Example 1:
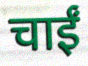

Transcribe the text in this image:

चाईं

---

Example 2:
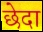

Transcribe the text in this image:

छेदा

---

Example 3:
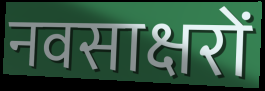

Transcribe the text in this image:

नवसाक्षरों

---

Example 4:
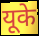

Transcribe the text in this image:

यूके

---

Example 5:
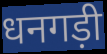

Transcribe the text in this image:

धनगड़ी